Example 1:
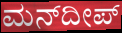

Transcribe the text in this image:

ಮನ್‍ದೀಪ್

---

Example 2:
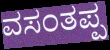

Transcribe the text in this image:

ವಸಂತಪ್ಪ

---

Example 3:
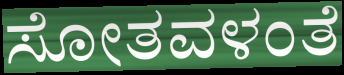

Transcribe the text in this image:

ಸೋತವಳಂತೆ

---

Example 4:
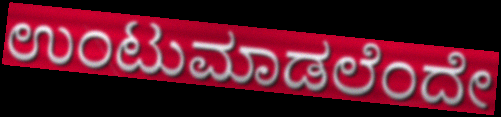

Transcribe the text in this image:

ಉಂಟುಮಾಡಲೆಂದೇ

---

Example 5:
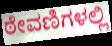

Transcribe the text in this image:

ಠೇವಣಿಗಳಲ್ಲಿ